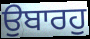
ਉਬਾਰਹੁ